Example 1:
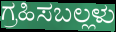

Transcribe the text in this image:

ಗ್ರಹಿಸಬಲ್ಲಳು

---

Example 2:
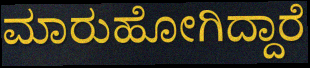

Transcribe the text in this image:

ಮಾರುಹೋಗಿದ್ದಾರೆ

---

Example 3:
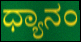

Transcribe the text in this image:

ಧ್ಯಾನಂ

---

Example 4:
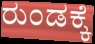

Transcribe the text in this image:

ರುಂಡಕ್ಕೆ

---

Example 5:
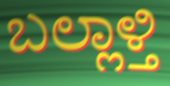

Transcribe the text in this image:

ಬಲ್ಲಾಳ್ತಿ